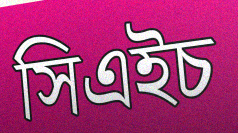
সিএইচ